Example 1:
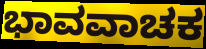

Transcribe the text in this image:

ಭಾವವಾಚಕ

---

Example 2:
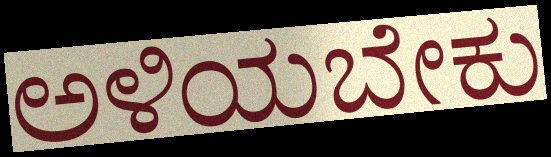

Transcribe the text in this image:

ಅಳಿಯಬೇಕು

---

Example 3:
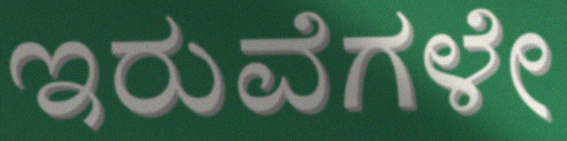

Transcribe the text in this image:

ಇರುವೆಗಳೇ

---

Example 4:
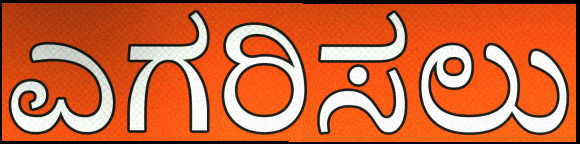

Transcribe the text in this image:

ಎಗರಿಸಲು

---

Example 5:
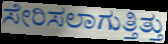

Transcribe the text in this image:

ಸೇರಿಸಲಾಗುತ್ತಿತ್ತು